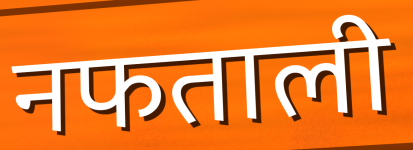
नफताली